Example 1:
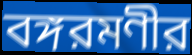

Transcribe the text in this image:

বঙ্গরমণীর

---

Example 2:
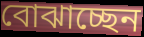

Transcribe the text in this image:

বোঝাচ্ছেন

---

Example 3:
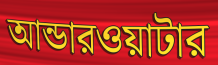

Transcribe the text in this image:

আন্ডারওয়াটার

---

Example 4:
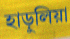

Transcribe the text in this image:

হাড়ুলিয়া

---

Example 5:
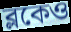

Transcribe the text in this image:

ব্লকেও